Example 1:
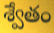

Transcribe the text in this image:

శ్వేతం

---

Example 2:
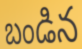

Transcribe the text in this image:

బండిన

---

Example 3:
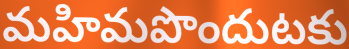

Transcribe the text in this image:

మహిమపొందుటకు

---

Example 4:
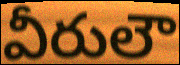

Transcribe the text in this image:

వీరులౌ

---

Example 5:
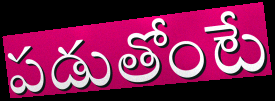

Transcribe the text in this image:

పడుతోంటే